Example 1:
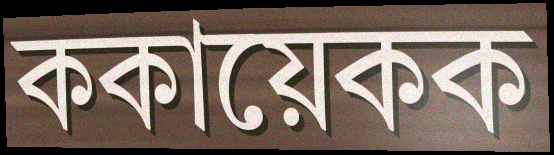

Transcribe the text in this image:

ককায়েকক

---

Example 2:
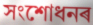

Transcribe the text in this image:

সংশোধনৰ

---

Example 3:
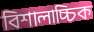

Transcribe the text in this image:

বিশালাচ্চিক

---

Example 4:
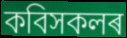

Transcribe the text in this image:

কবিসকলৰ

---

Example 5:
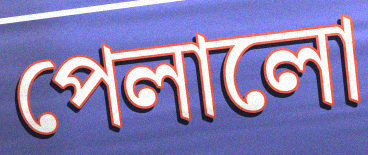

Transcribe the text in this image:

পেলালো